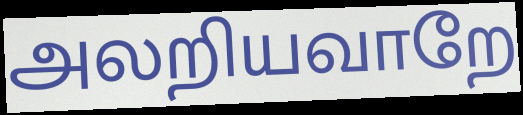
அலறியவாறே